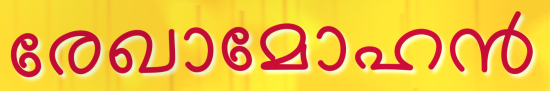
രേഖാമോഹൻ